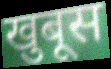
खुबूस